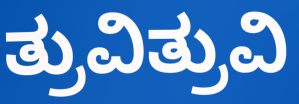
ತ್ರುವಿತ್ರುವಿ